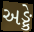
અઙ્કે